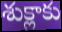
శుక్లాకు